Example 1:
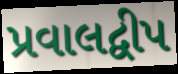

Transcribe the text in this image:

પ્રવાલદ્વીપ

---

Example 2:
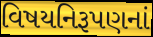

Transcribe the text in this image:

વિષયનિરૂપણનાં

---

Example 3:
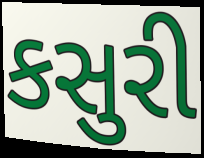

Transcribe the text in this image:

કસુરી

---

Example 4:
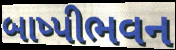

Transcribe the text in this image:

બાષ્પીભવન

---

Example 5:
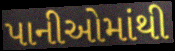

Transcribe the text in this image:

પાનીઓમાંથી